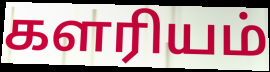
களரியம்